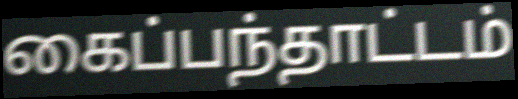
கைப்பந்தாட்டம்